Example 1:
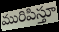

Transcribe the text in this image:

మురిపిస్తూ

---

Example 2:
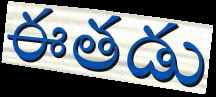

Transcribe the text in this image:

ఈతడు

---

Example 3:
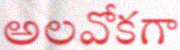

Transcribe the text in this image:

అలవోకగా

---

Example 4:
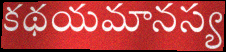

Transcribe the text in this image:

కథయమానస్య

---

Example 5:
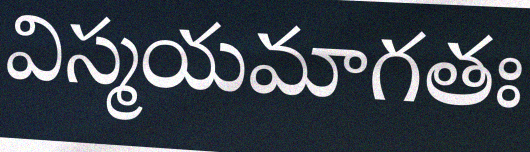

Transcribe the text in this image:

విస్మయమాగతః